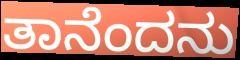
ತಾನೆಂದನು